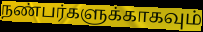
நண்பர்களுக்காகவும்